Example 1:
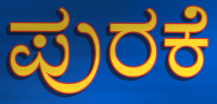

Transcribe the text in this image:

ಪುರಕೆ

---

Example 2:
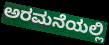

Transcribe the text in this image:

ಅರಮನೆಯಲ್ಲಿ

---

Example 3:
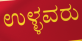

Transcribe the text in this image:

ಉಳ್ಳವರು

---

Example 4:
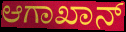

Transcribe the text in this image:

ಆಗಾಖಾನ್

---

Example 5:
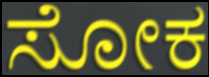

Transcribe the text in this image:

ಸೋಕ